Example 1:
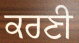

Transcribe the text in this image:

ਕਰਣੀ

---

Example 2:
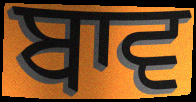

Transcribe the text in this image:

ਬਾਵ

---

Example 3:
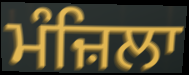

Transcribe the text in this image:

ਮੰਜ਼ਿਲਾ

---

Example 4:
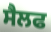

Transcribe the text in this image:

ਸੈਲਫ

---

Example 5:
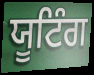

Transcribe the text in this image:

ਯੂਟਿੰਗ